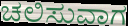
ಚಲಿಸುವಾಗ